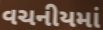
વચનીયમાં